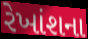
રેખાંશના